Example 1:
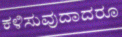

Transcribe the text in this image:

ಕಳಿಸುವುದಾದರೂ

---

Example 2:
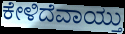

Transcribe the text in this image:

ಕೇಳಿದೆವಾಯ್ತು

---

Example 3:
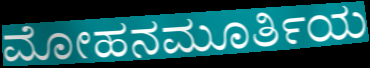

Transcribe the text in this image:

ಮೋಹನಮೂರ್ತಿಯ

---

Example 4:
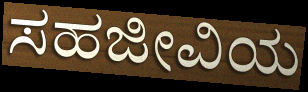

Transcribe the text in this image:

ಸಹಜೀವಿಯ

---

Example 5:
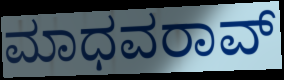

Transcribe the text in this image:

ಮಾಧವರಾವ್